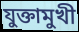
যুক্তামুখী